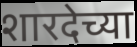
शारदेच्या